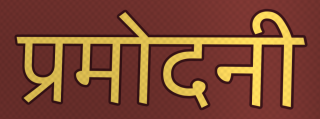
प्रमोदनी